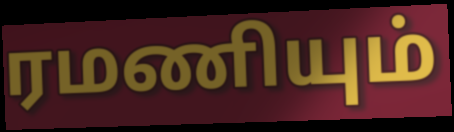
ரமணியும்